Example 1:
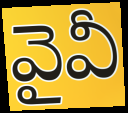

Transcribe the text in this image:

వైవీ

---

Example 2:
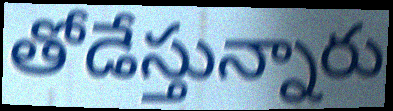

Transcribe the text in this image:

తోడేస్తున్నారు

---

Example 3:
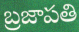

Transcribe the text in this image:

బ్రజాపతి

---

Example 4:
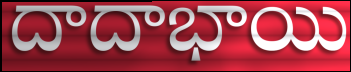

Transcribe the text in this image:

దాదాభాయి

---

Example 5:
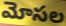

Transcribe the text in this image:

మోసల